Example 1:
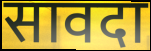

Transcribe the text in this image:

सावदा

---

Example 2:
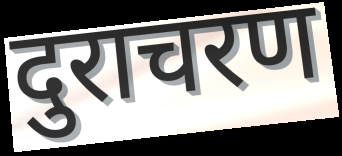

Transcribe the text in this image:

दुराचरण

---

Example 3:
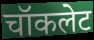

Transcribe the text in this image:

चॉकलेट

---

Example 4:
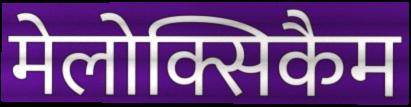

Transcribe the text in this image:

मेलोक्सिकैम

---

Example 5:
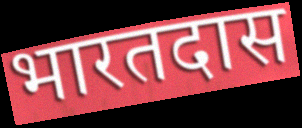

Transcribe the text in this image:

भारतदास